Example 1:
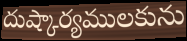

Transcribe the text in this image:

దుష్కార్యములకును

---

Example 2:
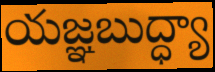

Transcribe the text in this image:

యజ్ఞబుద్ధ్యా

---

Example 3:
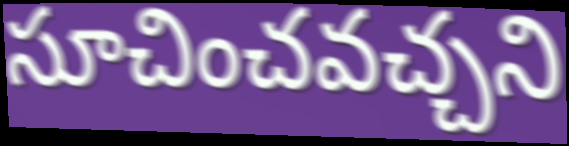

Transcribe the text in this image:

సూచించవచ్చని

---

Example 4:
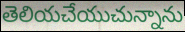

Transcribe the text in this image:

తెలియచేయుచున్నాను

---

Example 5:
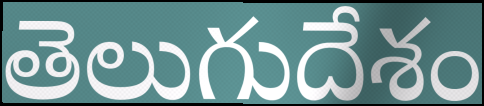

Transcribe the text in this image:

తెలుగుదేశం